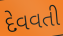
દેવવતી